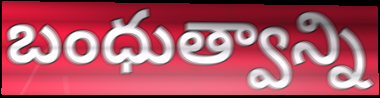
బంధుత్వాన్ని